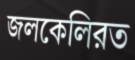
জলকেলিরত